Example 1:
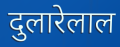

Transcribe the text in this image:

दुलारेलाल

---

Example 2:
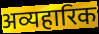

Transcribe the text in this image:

अव्यहारिक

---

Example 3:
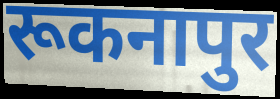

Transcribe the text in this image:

रूकनापुर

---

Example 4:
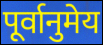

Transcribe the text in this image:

पूर्वानुमेय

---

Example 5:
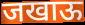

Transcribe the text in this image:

जखाऊ